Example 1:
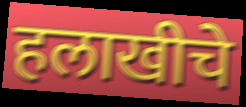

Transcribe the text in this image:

हलाखीचे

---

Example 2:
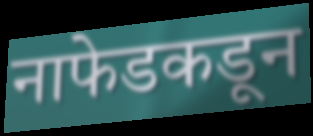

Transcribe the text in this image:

नाफेडकडून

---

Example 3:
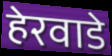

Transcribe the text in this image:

हेरवाडे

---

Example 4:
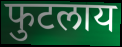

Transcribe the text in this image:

फुटलाय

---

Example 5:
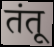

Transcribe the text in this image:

तंतू